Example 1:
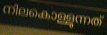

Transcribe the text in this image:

നിലകൊള്ളുന്നത്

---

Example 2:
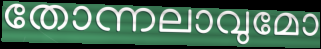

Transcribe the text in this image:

തോന്നലാവുമോ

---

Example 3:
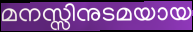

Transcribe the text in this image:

മനസ്സിനുടമയായ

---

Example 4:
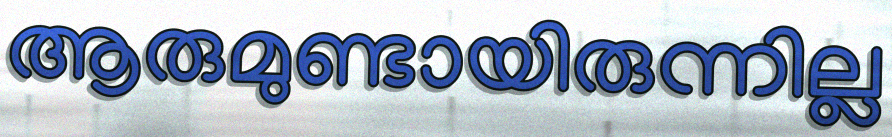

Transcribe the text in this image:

ആരുമുണ്ടായിരുന്നില്ല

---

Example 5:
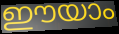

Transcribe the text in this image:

ഈയാം